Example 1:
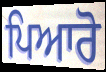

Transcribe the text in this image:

ਪਿਆਰੋ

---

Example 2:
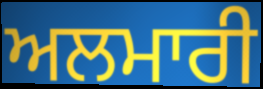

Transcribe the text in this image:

ਅਲਮਾਰੀ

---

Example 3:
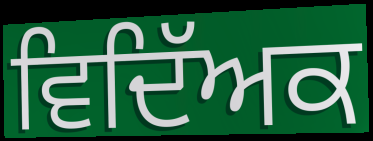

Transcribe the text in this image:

ਵਿਦਿੱਅਕ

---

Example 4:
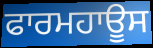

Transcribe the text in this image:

ਫਾਰਮਹਾਊਸ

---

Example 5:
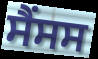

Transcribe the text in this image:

ਸੈਂਸਸ